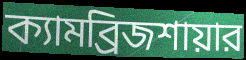
ক্যামব্রিজশায়ার